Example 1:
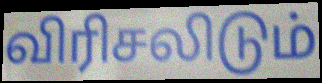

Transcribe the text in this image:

விரிசலிடும்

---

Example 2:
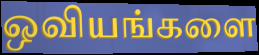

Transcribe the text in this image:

ஒவியங்களை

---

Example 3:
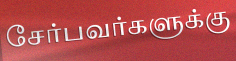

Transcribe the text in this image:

சேர்பவர்களுக்கு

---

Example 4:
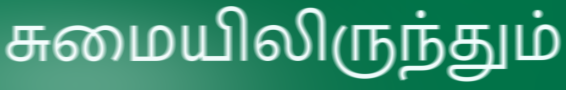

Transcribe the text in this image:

சுமையிலிருந்தும்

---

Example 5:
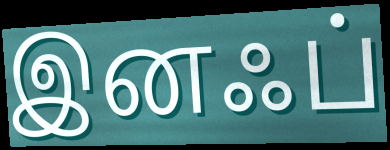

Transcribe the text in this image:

இனஃப்